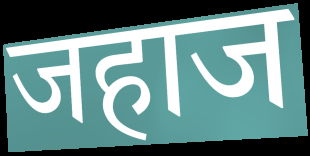
जहाज